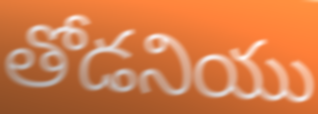
తోడనియు